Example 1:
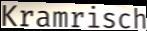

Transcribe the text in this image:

Kramrisch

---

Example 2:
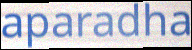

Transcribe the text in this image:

aparadha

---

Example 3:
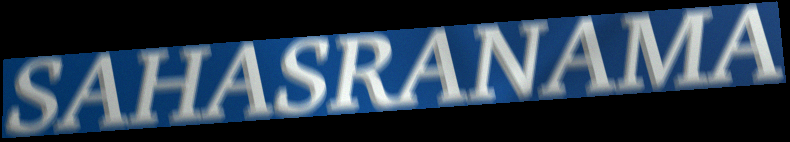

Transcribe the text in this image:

SAHASRANAMA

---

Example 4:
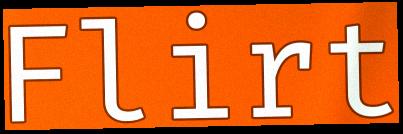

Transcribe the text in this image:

Flirt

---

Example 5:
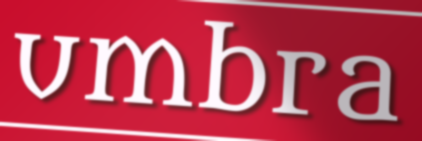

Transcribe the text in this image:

umbra